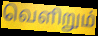
வெளிறும்